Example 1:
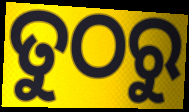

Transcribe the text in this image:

ତୁଠରୁ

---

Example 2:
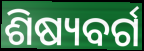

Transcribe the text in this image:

ଶିଷ୍ୟବର୍ଗ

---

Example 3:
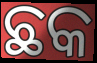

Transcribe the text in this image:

ଛକ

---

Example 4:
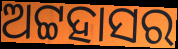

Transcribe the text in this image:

ଅଟ୍ଟହାସର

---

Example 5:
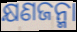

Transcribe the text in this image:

କ୍ଷଣଜନ୍ମା